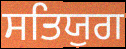
ਸਤਿਯੁਗ